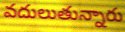
వదులుతున్నారు